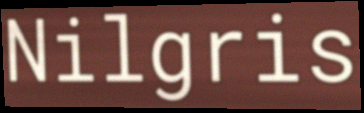
Nilgris